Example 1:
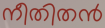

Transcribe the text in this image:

നീതിതൻ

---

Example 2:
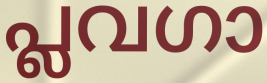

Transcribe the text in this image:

പ്ലവഗാ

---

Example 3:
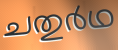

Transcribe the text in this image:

ചതുർഥ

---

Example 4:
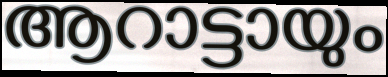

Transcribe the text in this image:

ആറാട്ടായും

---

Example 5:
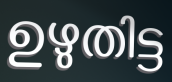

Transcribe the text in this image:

ഉഴുതിട്ട